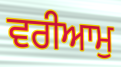
ਵਰੀਆਮੁ